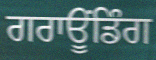
ਗਰਾਊਂਡਿੰਗ